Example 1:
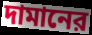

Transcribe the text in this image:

দামানের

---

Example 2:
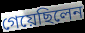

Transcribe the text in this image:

গেয়েছিলেন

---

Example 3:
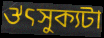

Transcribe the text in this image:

ঔৎসুক্যটা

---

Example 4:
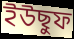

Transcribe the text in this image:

ইউছুফ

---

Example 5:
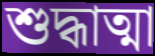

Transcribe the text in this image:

শুদ্ধাত্মা